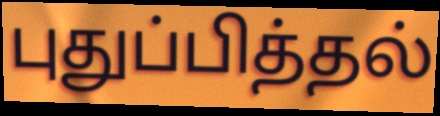
புதுப்பித்தல்